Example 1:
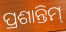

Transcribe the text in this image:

ପ୍ରଶାନ୍ତିମ୍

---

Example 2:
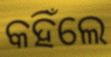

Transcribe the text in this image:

କହିଁଲେ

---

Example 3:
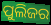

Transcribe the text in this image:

ପୁଲିଜର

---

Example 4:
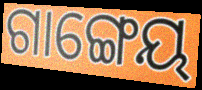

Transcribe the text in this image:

ଗାଙ୍ଗେୟ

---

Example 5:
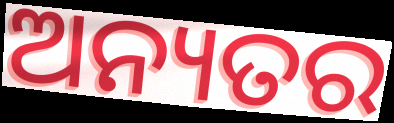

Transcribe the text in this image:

ଅନ୍ୟତର